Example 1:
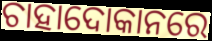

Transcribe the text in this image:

ଚାହାଦୋକାନରେ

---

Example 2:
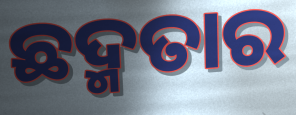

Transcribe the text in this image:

ଛଦ୍ମତାର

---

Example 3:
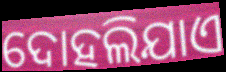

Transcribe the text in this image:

ଦୋହଲିଯାଏ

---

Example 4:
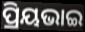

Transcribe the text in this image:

ପ୍ରିୟଭାଇ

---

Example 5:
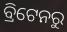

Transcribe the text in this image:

ବ୍ରିଟେନରୁ